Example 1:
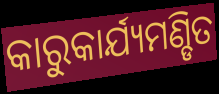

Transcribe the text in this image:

କାରୁକାର୍ଯ୍ୟମଣ୍ଡିତ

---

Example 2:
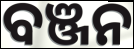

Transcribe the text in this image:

ବଞ୍ଜନ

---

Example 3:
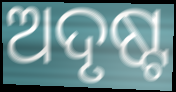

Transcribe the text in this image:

ଅଦୃଷ୍ଟ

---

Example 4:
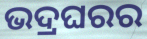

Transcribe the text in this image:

ଭଦ୍ରଘରର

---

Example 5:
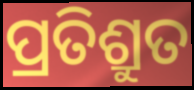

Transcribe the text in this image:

ପ୍ରତିଶ୍ରୁତ